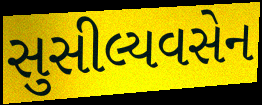
સુસીલ્યવસેન